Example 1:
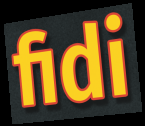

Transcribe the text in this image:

fidi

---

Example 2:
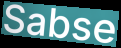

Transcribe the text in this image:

Sabse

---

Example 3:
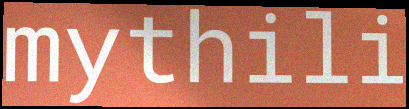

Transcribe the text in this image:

mythili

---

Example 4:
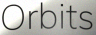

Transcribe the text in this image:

Orbits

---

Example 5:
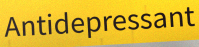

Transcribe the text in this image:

Antidepressant